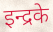
इन्द्रके